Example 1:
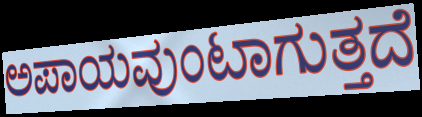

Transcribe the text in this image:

ಅಪಾಯವುಂಟಾಗುತ್ತದೆ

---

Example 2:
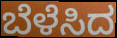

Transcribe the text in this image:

ಬೆಳೆಸಿದ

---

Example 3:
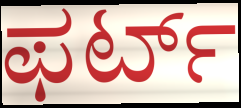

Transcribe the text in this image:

ಫರ್ಟ್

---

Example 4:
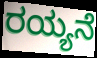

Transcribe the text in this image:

ರಯ್ಯನೆ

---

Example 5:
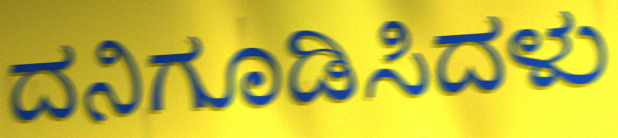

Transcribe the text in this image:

ದನಿಗೂಡಿಸಿದಳು